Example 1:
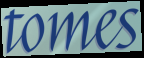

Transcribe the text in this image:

tomes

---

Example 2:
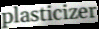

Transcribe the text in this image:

plasticizer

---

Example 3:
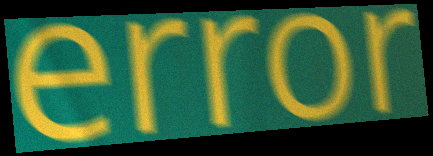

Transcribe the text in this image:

error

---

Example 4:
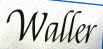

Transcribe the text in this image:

Waller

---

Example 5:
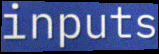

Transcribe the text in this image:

inputs